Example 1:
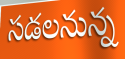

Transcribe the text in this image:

సడలనున్న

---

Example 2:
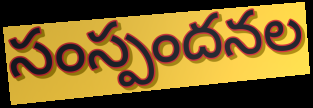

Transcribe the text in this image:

సంస్పందనల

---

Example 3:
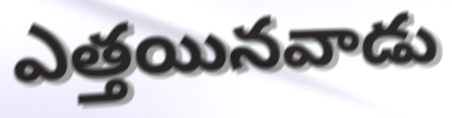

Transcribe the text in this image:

ఎత్తయినవాడు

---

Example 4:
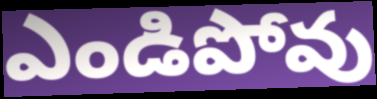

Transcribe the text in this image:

ఎండిపోవు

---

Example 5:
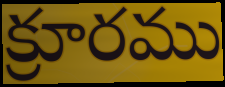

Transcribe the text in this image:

క్రూరము